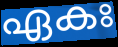
ഏകഃ